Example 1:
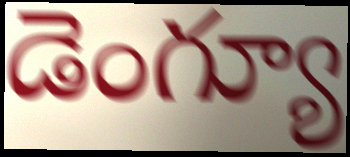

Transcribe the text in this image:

డెంగ్యూ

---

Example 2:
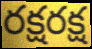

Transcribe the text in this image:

రక్షరక్ష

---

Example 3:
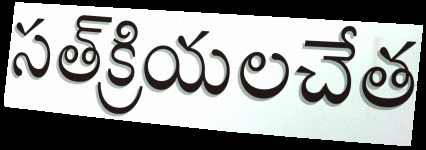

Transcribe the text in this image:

సత్‌క్రియలచేత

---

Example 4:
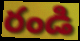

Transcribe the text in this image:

రండి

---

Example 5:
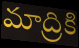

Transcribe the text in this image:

మాద్రికి